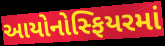
આયોનોસ્ફિયરમાં